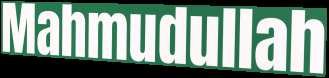
Mahmudullah